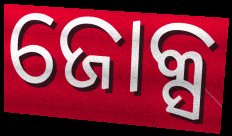
ଜୋକ୍ସ